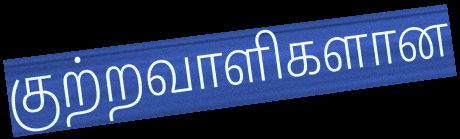
குற்றவாளிகளான